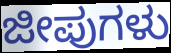
ಜೀಪುಗಳು